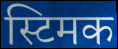
स्टिमक